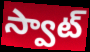
స్వాట్